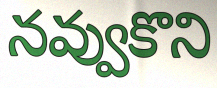
నవ్వుకొని